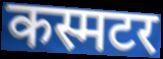
कस्मटर